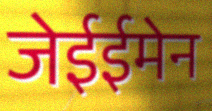
जेईईमेन